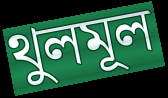
থুলমূল